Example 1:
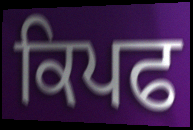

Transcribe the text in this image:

ਕਿਪਫ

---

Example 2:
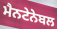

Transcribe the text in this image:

ਮੈਨਟੇਨੇਬਲ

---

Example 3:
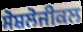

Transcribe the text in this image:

ਸੋਸ਼ਲੋਜੀਕਲ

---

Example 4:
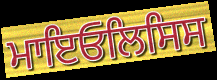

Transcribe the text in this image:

ਮਾਇਓਲਿਸਿਸ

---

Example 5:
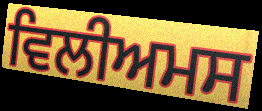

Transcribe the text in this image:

ਵਿਲੀਅਮਸ